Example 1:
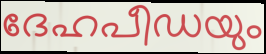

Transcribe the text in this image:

ദേഹപീഡയും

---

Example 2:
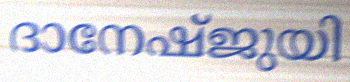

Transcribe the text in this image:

ദാനേഷ്ജുയി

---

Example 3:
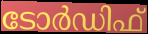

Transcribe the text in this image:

ടോർഡിഫ്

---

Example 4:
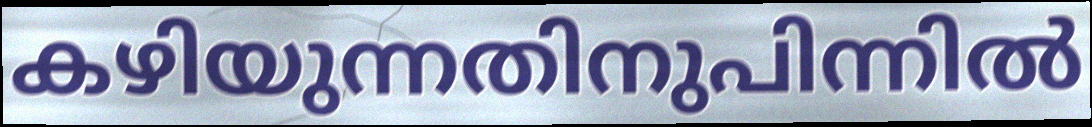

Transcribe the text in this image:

കഴിയുന്നതിനുപിന്നിൽ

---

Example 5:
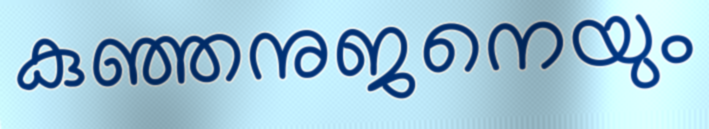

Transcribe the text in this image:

കുഞ്ഞനുജനെയും